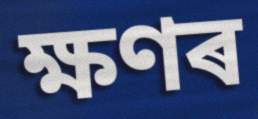
ক্ষণৰ